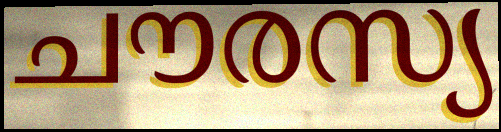
ചൗരസ്യ